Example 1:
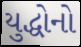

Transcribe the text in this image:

યુદ્ધોનો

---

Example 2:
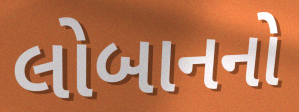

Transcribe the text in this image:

લોબાનનો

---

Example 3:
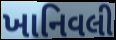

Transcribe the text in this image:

ખાનિવલી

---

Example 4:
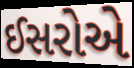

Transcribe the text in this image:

ઈસરોએ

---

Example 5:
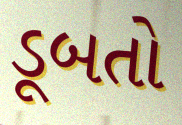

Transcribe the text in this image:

ડૂબતો